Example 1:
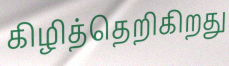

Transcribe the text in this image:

கிழித்தெறிகிறது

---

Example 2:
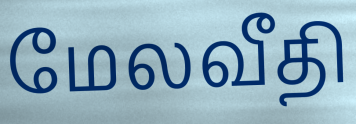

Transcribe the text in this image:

மேலவீதி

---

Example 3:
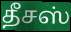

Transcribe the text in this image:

தீசஸ்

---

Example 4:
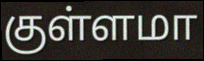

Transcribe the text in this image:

குள்ளமா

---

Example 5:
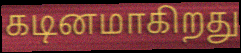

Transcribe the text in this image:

கடினமாகிறது